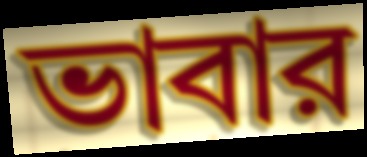
ভাবার